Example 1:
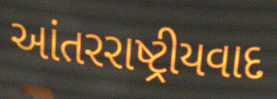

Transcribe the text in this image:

આંતરરાષ્ટ્રીયવાદ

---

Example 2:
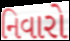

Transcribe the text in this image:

નિવારો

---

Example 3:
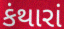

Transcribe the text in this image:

કંથારાં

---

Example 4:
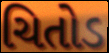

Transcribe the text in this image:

ચિતોડ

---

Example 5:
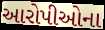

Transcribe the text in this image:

આરોપીઓના